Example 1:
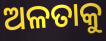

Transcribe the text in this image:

ଅଳତାକୁ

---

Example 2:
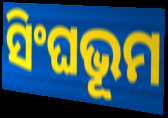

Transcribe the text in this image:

ସିଂଘଭୂମ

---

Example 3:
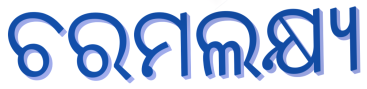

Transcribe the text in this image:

ଚରମଲକ୍ଷ୍ୟ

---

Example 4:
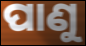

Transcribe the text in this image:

ପାଣୁ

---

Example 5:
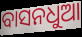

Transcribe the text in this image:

ବାସନଧୁଆ